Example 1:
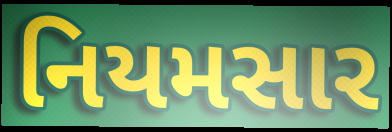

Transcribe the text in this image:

નિયમસાર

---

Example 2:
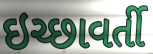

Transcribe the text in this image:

ઇચ્છાવર્તી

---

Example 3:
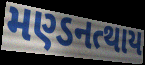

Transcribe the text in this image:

મણ્ડનત્થાય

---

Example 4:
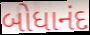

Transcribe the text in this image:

બોધાનંદ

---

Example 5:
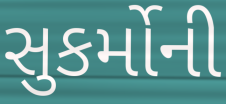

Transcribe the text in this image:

સુકર્મોની